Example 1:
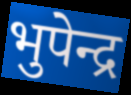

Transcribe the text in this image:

भुपेन्द्र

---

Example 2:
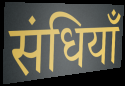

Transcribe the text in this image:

संधियाँ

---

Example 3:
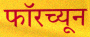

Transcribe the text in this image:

फॉरच्यून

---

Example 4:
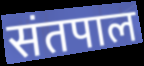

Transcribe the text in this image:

संतपाल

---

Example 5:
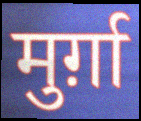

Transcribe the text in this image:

मुर्ग़ा